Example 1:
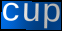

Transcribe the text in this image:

cup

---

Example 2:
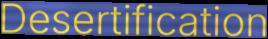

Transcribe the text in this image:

Desertification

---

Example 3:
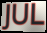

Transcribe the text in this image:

JUL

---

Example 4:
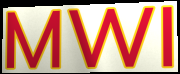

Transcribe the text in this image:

MWI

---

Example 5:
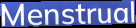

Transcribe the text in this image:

Menstrual